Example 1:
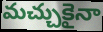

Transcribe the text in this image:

మచ్చుకైనా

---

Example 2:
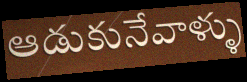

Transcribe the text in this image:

ఆడుకునేవాళ్ళు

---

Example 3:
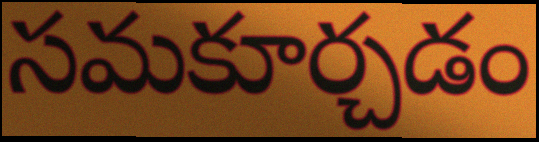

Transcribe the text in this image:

సమకూర్చడం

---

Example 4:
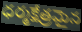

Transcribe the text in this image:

ధర్మక్షేత్రమైన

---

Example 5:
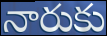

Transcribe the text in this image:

నారుకు